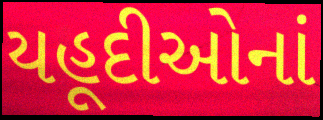
યહૂદીઓનાં